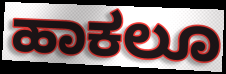
ಹಾಕಲೂ